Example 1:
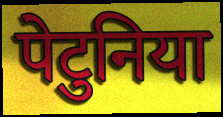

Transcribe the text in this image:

पेटुनिया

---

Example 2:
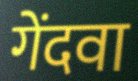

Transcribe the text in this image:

गेंदवा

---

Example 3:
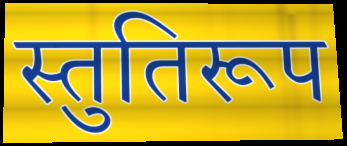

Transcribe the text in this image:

स्तुतिरूप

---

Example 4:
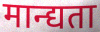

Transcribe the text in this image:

मान्द्यता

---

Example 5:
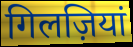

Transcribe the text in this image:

गिलज़ियां